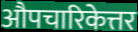
औपचारिकेत्तर